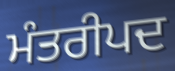
ਮੰਤਰੀਪਦ